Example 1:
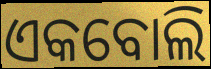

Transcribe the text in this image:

ଏକବୋଲି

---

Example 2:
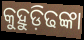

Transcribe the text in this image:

କୁହୁଡ଼ିଢଙ୍କା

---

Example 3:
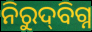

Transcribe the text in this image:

ନିରୁଦ୍‌ବିଗ୍ନ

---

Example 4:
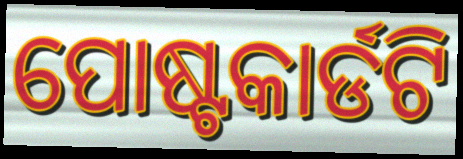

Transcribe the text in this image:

ପୋଷ୍ଟକାର୍ଡଟି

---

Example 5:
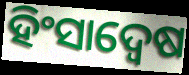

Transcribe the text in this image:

ହିଂସାଦ୍ୱେଷ